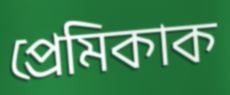
প্ৰেমিকাক